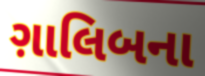
ગ઼ાલિબના